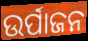
ଉର୍ପାଜନ